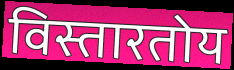
विस्तारतोय